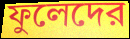
ফুলেদের